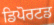
ਡਿਪੋਰਟਡ